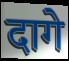
दागे